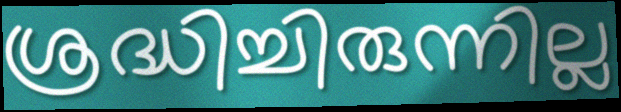
ശ്രദ്ധിച്ചിരുന്നില്ല